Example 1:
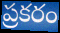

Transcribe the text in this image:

ప్రకరం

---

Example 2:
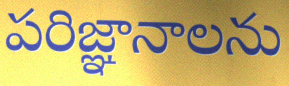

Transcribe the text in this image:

పరిజ్ఞానాలను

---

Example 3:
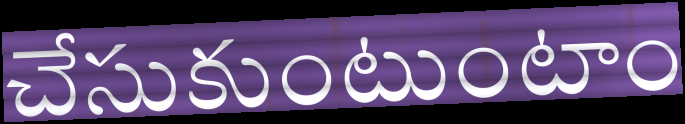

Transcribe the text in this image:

చేసుకుంటుంటాం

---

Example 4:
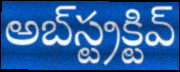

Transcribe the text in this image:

అబ్‌స్ట్రక్టివ్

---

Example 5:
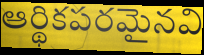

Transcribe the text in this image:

ఆర్థికపరమైనవి